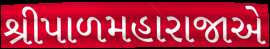
શ્રીપાળમહારાજાએ